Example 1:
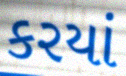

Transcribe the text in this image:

કરયાં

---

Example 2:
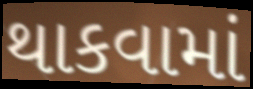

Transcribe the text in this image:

થાકવામાં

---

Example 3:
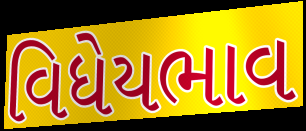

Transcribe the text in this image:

વિધેયભાવ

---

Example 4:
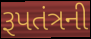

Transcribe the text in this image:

રૂપતંત્રની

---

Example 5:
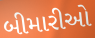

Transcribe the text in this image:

બીમારીઓ